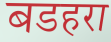
बडहरा